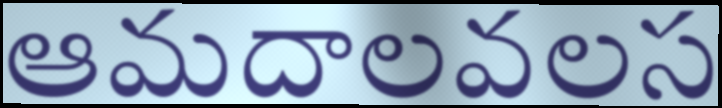
ఆమదాలవలస